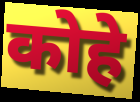
कोहे